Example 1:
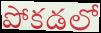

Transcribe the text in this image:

పోకడలో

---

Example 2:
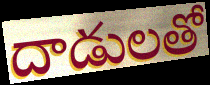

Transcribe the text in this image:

దాడులతో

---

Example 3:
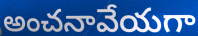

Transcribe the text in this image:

అంచనావేయగా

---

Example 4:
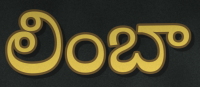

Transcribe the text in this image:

లింబా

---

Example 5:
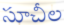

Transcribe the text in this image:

సూచీల